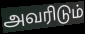
அவரிடும்